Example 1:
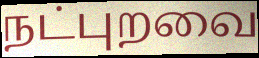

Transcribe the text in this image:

நட்புறவை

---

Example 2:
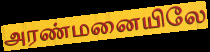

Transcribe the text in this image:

அரண்மனையிலே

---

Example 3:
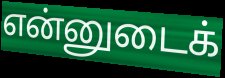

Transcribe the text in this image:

என்னுடைக்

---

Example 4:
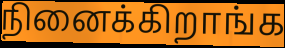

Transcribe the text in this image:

நினைக்கிறாங்க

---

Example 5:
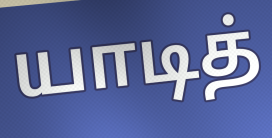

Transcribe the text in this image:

யாடித்